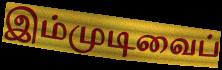
இம்முடிவைப்